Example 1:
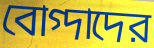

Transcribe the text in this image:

বোগ্দাদের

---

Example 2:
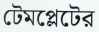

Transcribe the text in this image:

টেমপ্লেটের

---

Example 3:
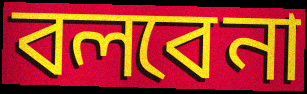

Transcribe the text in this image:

বলবেনা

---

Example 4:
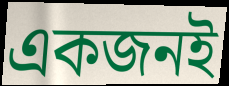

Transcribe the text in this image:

একজনই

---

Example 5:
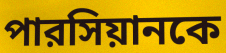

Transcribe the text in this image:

পারসিয়ানকে